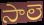
సాలె